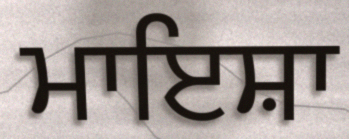
ਮਾਇਸ਼ਾ